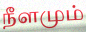
நீளமும்